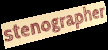
stenographer